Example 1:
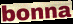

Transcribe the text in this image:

bonna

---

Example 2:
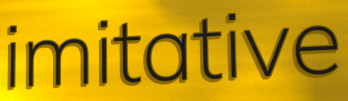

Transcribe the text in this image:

imitative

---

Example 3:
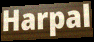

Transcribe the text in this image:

Harpal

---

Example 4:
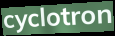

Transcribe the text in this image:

cyclotron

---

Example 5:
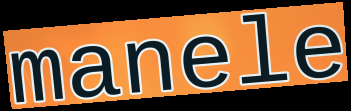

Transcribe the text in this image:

manele